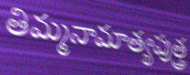
తిమ్మనామాత్యపుత్త్ర